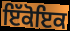
ਇੱਕੋਇਕ